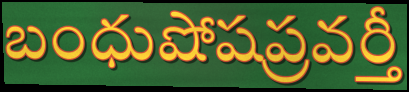
బంధుషోషప్రవర్తీ